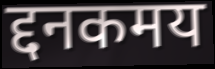
द्दनकमय